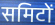
समिटों